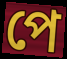
পে